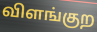
விளங்குற